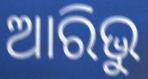
ଆରିଭୁ